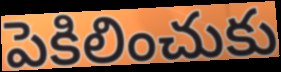
పెకిలించుకు